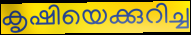
കൃഷിയെക്കുറിച്ച